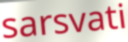
sarsvati